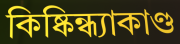
কিষ্কিন্ধ্যাকাণ্ড